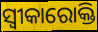
ସ୍ୱୀକାରୋକ୍ତି